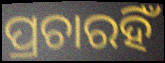
ପ୍ରଚାରହିଁ